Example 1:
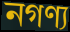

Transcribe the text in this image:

নগণ্য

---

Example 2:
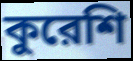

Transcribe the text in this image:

কুরেশি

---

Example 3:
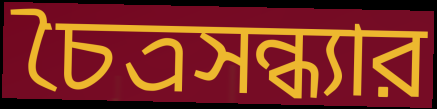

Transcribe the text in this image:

চৈত্রসন্ধ্যার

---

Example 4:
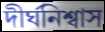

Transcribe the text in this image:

দীর্ঘনিশ্বাস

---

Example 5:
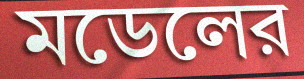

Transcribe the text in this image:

মডেলের